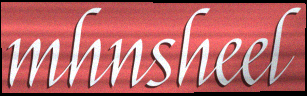
mhnsheel